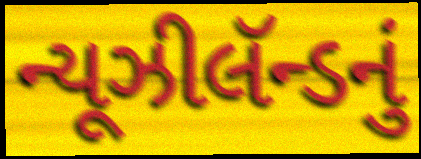
ન્યૂઝીલૅન્ડનું